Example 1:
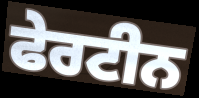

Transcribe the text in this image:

ਫੇਰਟੀਨ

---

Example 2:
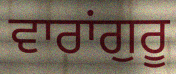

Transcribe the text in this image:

ਵਾਰਾਂਗੁਰੂ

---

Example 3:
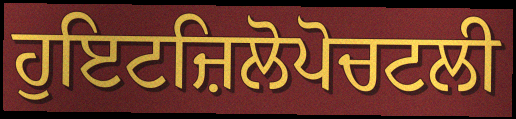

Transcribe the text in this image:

ਹੁਇਟਜ਼ਿਲੋਪੋਚਟਲੀ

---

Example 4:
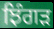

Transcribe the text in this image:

ਝਿੰਗੜ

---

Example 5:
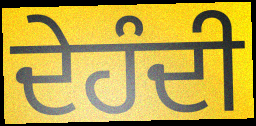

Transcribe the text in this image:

ਦੇਹੰਦੀ